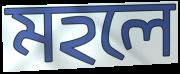
মহলে